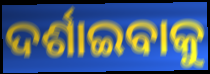
ଦର୍ଶାଇବାକୁ